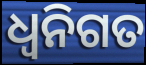
ଧ୍ଵନିଗତ